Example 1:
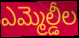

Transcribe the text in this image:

ఎమ్మెల్డీల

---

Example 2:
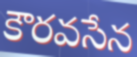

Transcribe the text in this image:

కౌరవసేన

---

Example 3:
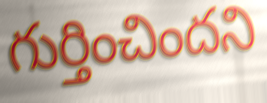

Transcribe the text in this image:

గుర్తించిందని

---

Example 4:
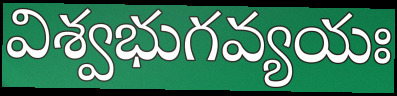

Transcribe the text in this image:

విశ్వభుగవ్యయః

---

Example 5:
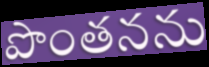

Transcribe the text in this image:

పొంతనను